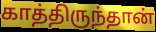
காத்திருந்தான்